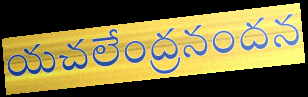
యచలేంద్రనందన